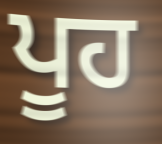
ਪੂਹ